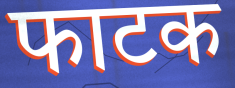
फाटक